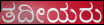
ತದೀಯರು